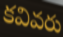
కవివరు